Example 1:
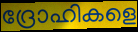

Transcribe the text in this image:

ദ്രോഹികളെ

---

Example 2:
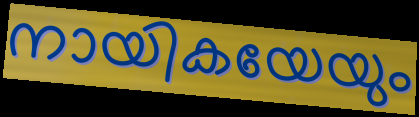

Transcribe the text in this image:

നായികയേയും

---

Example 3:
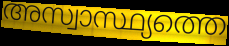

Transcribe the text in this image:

അസ്വാസ്ഥ്യത്തെ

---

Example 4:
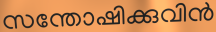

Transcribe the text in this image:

സന്തോഷിക്കുവിൻ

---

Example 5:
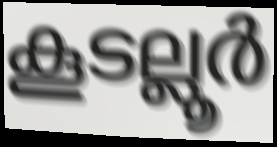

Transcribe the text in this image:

കൂടല്ലൂർ